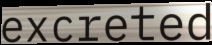
excreted